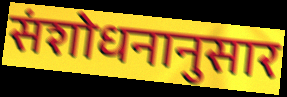
संशोधनानुसार